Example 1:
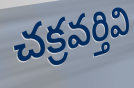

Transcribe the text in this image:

చక్రవర్తివి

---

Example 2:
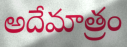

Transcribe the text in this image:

అదేమాత్రం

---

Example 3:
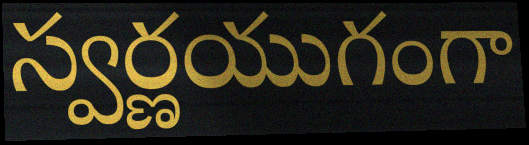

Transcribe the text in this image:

స్వర్ణయుగంగా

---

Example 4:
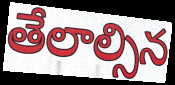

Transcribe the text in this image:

తేలాల్సిన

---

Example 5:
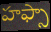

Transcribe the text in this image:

హఫ్సా